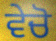
ਵੇਚੋ